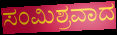
ಸಂಮಿಶ್ರವಾದ